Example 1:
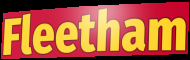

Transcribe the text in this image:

Fleetham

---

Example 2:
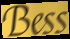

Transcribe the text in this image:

Bess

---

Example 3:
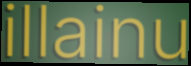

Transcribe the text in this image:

illainu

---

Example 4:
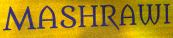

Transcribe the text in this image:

MASHRAWI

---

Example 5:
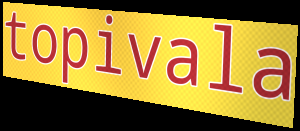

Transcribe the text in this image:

topivala